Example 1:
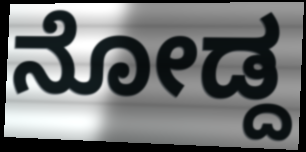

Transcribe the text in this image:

ನೋಡ್ದ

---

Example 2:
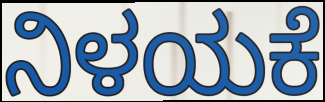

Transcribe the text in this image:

ನಿಳಯಕೆ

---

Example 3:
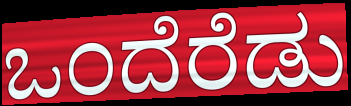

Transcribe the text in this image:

ಒಂದೆರೆಡು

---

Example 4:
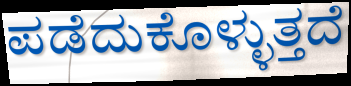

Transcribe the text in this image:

ಪಡೆದುಕೊಳ್ಳುತ್ತದೆ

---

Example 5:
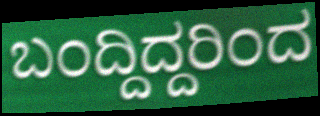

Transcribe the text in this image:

ಬಂದ್ದಿದ್ದರಿಂದ